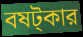
বষট্কার